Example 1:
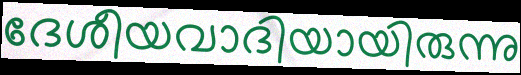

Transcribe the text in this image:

ദേശീയവാദിയായിരുന്നു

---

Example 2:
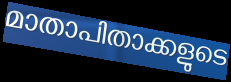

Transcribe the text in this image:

മാതാപിതാക്കളുടെ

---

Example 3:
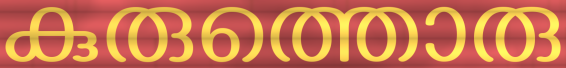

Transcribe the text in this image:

കുരുത്തൊരു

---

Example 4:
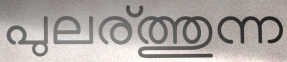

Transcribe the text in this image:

പുലര്ത്തുന്ന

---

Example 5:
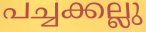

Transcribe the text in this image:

പച്ചക്കല്ലു